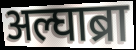
अल्घाब्रा